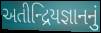
અતીન્દ્રિયજ્ઞાનનું